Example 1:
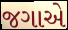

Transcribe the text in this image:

જગાએ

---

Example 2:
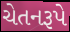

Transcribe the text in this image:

ચેતનરૂપે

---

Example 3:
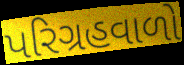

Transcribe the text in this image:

પરિગ્રહવાળો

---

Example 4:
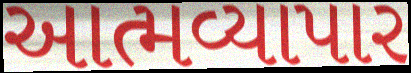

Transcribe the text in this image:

આત્મવ્યાપાર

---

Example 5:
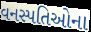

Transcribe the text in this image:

વનસ્પતિઓના